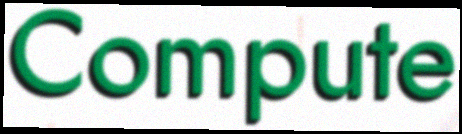
Compute